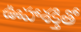
ఊహాశక్తితో